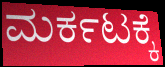
ಮರ್ಕಟಕ್ಕೆ